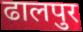
ढालपुर